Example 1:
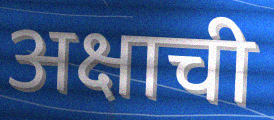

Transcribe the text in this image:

अक्षाची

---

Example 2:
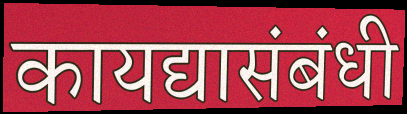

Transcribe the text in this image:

कायद्यासंबंधी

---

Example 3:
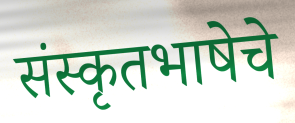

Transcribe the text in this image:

संस्कृतभाषेचे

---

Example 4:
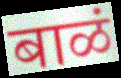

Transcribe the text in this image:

बाळं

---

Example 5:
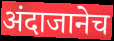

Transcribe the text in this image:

अंदाजानेच